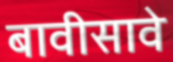
बावीसावे